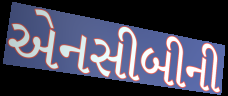
એનસીબીની